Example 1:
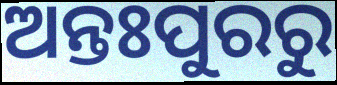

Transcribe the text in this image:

ଅନ୍ତଃପୁରରୁ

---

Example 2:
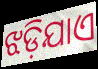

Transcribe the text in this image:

ଝଡ଼ିଯାଏ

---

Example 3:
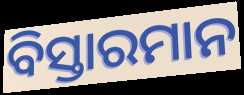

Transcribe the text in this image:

ବିସ୍ତାରମାନ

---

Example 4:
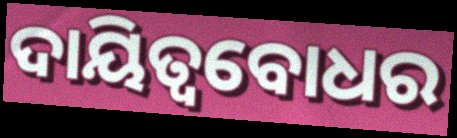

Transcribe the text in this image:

ଦାୟିତ୍ବବୋଧର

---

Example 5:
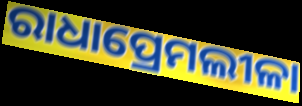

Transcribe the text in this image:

ରାଧାପ୍ରେମଲୀଳା